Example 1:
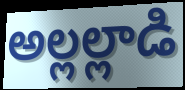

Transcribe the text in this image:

అల్లల్లాడి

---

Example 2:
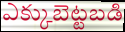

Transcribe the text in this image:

ఎక్కుబెట్టబడి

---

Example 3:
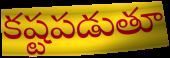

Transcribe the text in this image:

కష్టపడుతూ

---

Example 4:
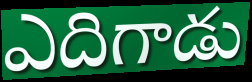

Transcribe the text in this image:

ఎదిగాడు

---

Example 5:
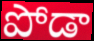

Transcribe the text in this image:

పోడా